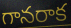
గానరాక